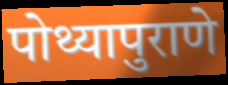
पोथ्यापुराणे